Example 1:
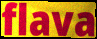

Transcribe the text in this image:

flava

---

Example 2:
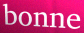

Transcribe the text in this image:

bonne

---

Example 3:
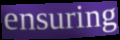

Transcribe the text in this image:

ensuring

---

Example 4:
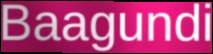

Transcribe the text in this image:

Baagundi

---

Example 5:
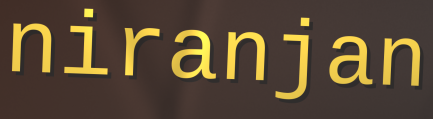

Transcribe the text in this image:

niranjan